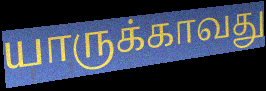
யாருக்காவது